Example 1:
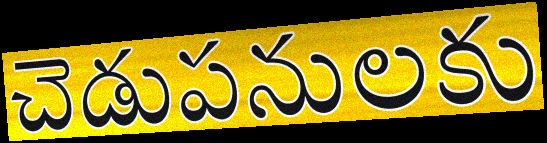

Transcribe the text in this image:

చెడుపనులకు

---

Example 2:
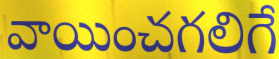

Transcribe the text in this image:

వాయించగలిగే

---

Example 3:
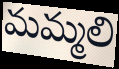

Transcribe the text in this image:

మమ్మలి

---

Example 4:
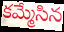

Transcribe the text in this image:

కమ్మేసిన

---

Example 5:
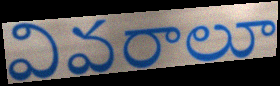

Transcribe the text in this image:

వివరాలూ